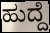
ಹುದ್ದೆ